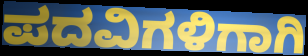
ಪದವಿಗಳಿಗಾಗಿ